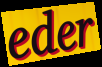
eder